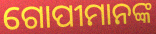
ଗୋପୀମାନଙ୍କ